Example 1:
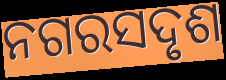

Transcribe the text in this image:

ନଗରସଦୃଶ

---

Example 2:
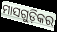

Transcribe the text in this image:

ମାସଗୁଡ଼ିକର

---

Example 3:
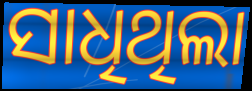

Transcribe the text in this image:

ସାଧିଥିଲା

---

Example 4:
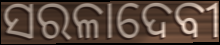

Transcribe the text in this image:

ସରଳାଦେବୀ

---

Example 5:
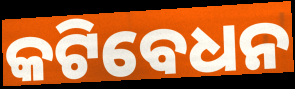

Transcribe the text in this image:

କଟିବେଧନ